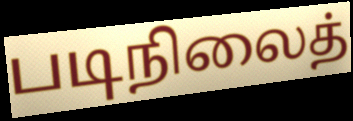
படிநிலைத்